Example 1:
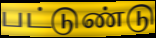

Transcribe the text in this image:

பட்டுண்டு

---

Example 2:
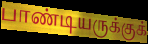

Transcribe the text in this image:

பாண்டியருக்குக்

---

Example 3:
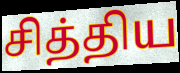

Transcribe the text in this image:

சித்திய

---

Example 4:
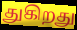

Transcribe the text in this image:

துகிறது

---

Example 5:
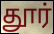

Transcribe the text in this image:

தூர்